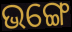
ଭଙ୍ଗେ